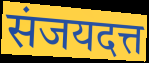
संजयदत्त